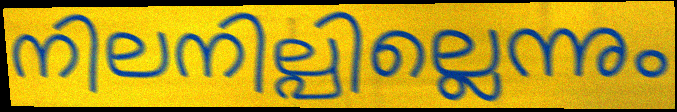
നിലനില്പില്ലെന്നും